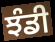
ਝੰਡੀ